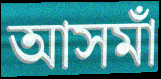
আসমাঁ